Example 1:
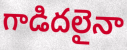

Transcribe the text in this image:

గాడిదలైనా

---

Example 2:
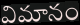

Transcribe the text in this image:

విమానం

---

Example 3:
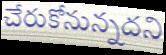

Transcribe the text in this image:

చేరుకోనున్నదని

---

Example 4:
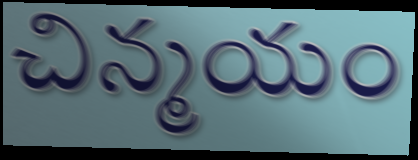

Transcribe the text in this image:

చిన్మయం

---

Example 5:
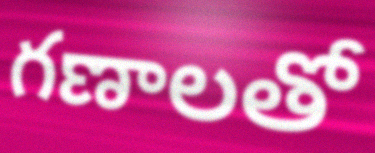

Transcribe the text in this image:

గణాలతో